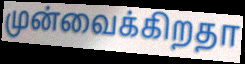
முன்வைக்கிறதா